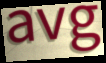
avg